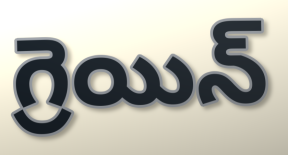
గ్రెయిన్